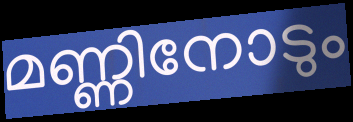
മണ്ണിനോടും